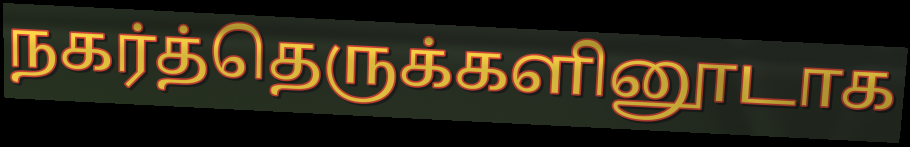
நகர்த்தெருக்களினூடாக